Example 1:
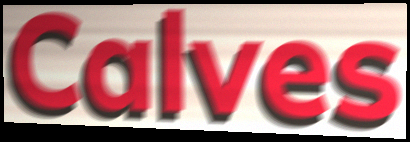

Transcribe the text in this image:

Calves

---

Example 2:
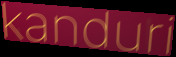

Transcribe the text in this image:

kanduri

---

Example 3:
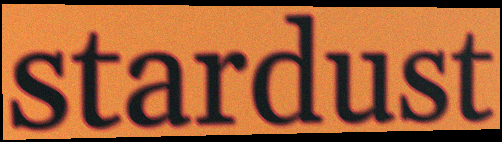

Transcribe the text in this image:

stardust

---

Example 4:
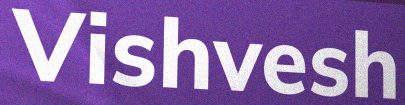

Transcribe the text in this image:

Vishvesh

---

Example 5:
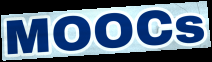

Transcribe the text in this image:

MOOCs